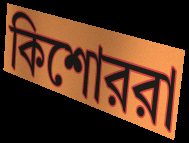
কিশোররা